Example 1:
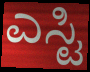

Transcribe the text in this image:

ಎಸ್ಟಿ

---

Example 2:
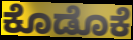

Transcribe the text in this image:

ಕೊಡೊಕೆ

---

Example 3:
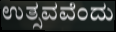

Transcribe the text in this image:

ಉತ್ಸವವೆಂದು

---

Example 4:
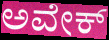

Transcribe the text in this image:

ಅವೇಕ್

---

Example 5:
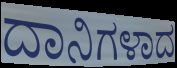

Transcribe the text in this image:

ದಾನಿಗಳಾದ